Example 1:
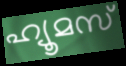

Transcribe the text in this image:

ഹ്യൂമസ്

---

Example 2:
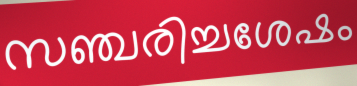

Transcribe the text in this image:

സഞ്ചരിച്ചശേഷം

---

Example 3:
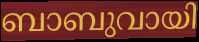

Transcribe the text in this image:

ബാബുവായി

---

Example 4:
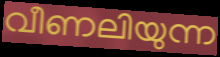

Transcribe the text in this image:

വീണലിയുന്ന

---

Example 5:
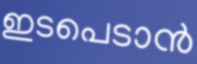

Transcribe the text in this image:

ഇടപെടാൻ